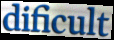
dificult